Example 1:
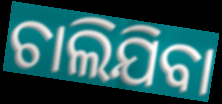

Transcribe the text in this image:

ଚାଲିଯିବା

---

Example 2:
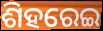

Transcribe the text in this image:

ଶିହରେଇ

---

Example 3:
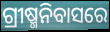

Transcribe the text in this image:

ଗ୍ରୀଷ୍ମନିବାସରେ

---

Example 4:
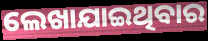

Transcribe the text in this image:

ଲେଖାଯାଇଥିବାର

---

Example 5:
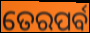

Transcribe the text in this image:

ତେରପର୍ବ